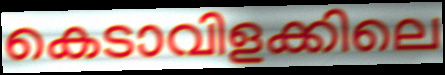
കെടാവിളക്കിലെ